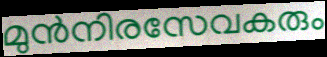
മുൻനിരസേവകരും